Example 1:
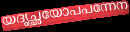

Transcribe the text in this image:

യദൃച്ഛയോപപന്നേന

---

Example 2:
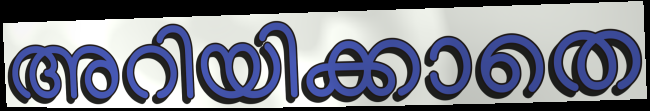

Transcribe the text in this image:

അറിയിക്കാതെ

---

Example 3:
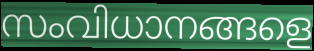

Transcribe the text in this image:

സംവിധാനങ്ങളെ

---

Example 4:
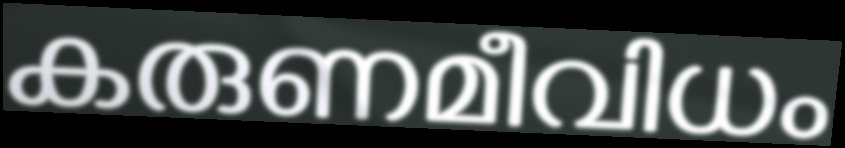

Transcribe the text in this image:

കരുണമീവിധം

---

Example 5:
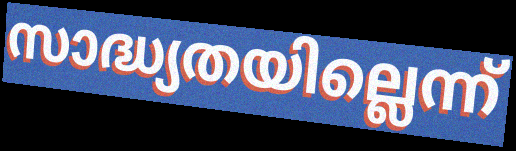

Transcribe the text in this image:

സാദ്ധ്യതയില്ലെന്ന്